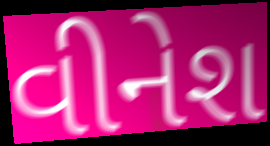
વીનેશ